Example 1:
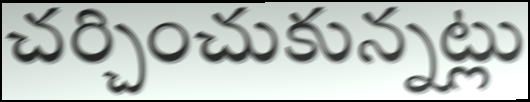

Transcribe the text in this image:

చర్చించుకున్నట్లు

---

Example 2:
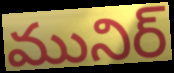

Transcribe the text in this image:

మునిర్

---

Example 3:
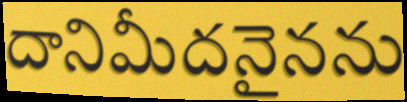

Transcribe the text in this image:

దానిమీదనైనను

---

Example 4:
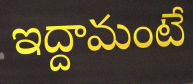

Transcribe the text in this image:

ఇద్దామంటే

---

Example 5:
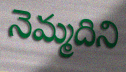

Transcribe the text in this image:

నెమ్మదిని